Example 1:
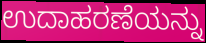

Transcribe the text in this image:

ಉದಾಹರಣೆಯನ್ನು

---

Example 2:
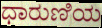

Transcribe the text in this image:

ಧಾರುಣಿಯ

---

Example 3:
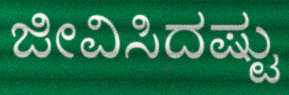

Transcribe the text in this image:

ಜೀವಿಸಿದಷ್ಟು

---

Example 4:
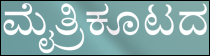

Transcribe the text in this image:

ಮೈತ್ರಿಕೂಟದ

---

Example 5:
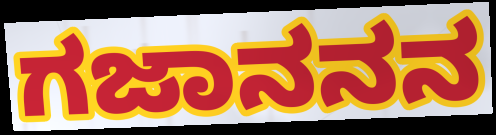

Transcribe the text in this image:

ಗಜಾನನನ